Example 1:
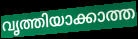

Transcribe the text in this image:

വൃത്തിയാക്കാത്ത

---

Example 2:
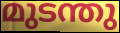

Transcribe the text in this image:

മുടന്തു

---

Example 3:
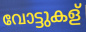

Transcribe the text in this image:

വോട്ടുകള്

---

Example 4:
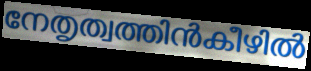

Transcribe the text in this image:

നേതൃത്വത്തിൻകീഴിൽ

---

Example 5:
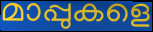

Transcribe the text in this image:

മാപ്പുകളെ